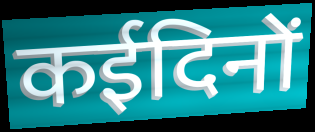
कईदिनों